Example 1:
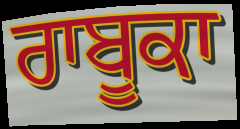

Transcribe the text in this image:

ਰਾਬੂਕਾ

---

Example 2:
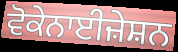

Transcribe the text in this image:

ਵੋਕੇਨਾਈਜ਼ੇਸ਼ਨ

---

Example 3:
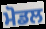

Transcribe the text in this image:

ਮੋਡਲ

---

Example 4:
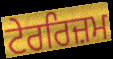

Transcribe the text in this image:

ਟੇਰਰਿਜ਼ਮ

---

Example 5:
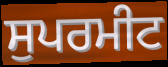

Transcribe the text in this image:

ਸੁਪਰਮੀਟ